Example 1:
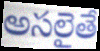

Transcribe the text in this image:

అసలైతే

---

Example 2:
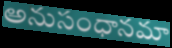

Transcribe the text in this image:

అనుసంధానమా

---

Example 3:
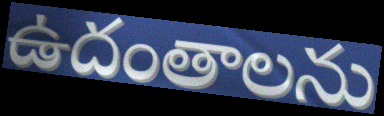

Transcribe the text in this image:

ఉదంతాలను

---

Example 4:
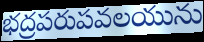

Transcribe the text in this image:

భద్రపరుపవలయును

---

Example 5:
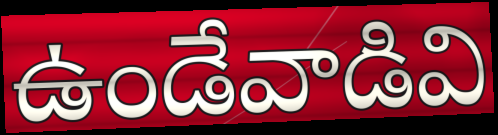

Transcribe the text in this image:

ఉండేవాడివి